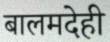
बालमदेही